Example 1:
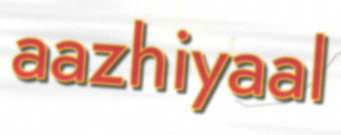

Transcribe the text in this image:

aazhiyaal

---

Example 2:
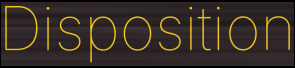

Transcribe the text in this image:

Disposition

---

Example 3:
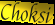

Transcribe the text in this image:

Choksi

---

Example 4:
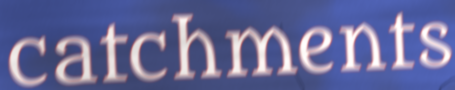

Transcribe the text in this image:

catchments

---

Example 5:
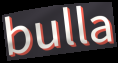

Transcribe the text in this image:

bulla